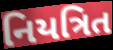
નિયત્રિત